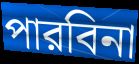
পারবিনা